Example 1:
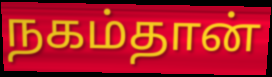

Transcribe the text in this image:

நகம்தான்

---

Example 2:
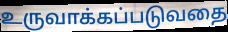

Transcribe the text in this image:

உருவாக்கப்படுவதை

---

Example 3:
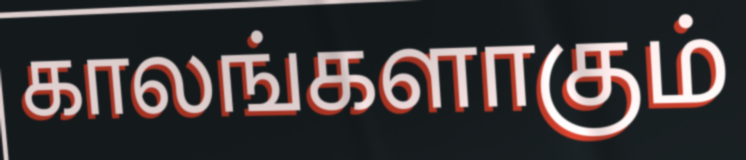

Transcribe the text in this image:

காலங்களாகும்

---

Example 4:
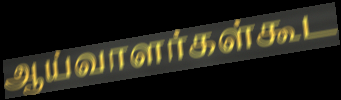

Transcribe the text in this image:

ஆய்வாளர்கள்கூட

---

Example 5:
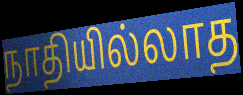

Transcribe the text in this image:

நாதியில்லாத